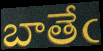
బాతేఁ